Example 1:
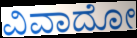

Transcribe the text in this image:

ವಿವಾದೋ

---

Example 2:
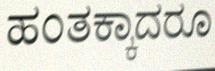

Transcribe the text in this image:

ಹಂತಕ್ಕಾದರೂ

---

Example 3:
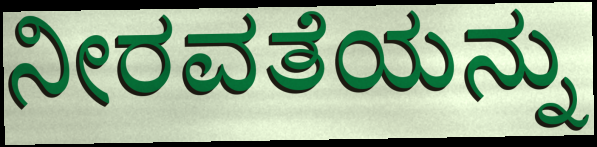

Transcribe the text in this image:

ನೀರವತೆಯನ್ನು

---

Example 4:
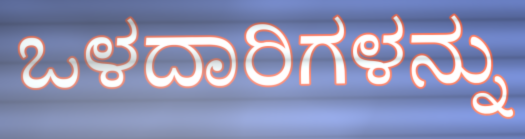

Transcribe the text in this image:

ಒಳದಾರಿಗಳನ್ನು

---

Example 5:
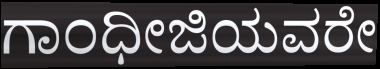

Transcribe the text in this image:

ಗಾಂಧೀಜಿಯವರೇ